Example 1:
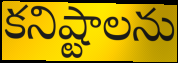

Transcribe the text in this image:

కనిష్టాలను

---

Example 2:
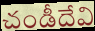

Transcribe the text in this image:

చండీదేవి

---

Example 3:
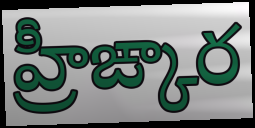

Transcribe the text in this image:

హ్రీఙ్కార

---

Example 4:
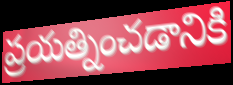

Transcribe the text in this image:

ప్రయత్నించడానికి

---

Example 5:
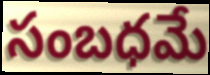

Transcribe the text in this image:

సంబధమే